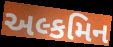
અલ્કમિન